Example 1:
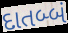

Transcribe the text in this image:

દાતબ્બં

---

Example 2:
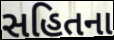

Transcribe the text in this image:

સહિતના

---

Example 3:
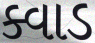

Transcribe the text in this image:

ક્વાડ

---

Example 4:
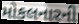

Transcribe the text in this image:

મોકલનારની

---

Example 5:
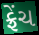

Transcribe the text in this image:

ફ્રેંચ